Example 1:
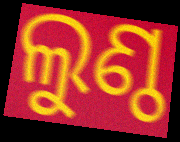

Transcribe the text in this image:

ଲୁଣ୍ଠ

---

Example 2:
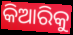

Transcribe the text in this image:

କିଆରିକୁ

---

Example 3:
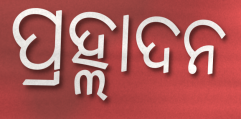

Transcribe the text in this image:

ପ୍ରହ୍ଲାଦନ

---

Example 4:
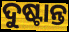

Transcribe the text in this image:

ଦୁଷ୍ଟାନ୍ତ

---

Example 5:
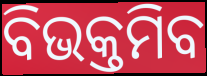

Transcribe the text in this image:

ବିଭକ୍ତମିବ